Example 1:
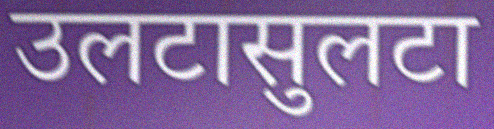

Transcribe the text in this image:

उलटासुलटा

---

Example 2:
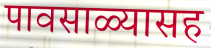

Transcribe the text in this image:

पावसाळ्यासह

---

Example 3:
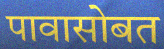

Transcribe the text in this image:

पावासोबत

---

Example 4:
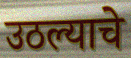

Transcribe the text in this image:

उठल्याचे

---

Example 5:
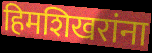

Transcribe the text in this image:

हिमशिखरांना